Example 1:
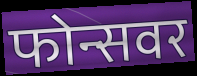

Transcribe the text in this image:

फोन्सवर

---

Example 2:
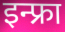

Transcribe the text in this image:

इन्फ्रा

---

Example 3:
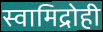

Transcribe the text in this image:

स्वामिद्रोही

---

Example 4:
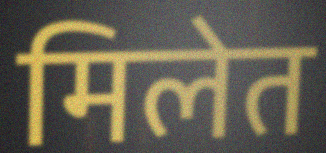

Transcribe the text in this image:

मिलेत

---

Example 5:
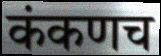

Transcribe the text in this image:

कंकणच